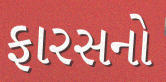
ફારસનો